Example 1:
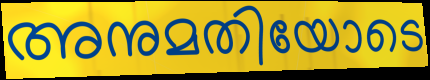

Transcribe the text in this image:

അനുമതിയോടെ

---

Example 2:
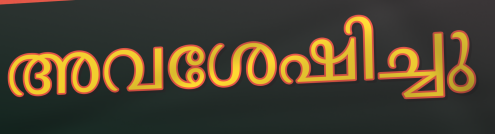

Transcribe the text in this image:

അവശേഷിച്ചു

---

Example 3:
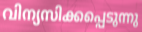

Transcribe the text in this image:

വിന്യസിക്കപ്പെടുന്നു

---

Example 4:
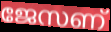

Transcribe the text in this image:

ജേസണ്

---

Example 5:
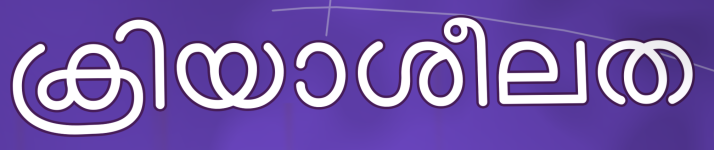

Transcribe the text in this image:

ക്രിയാശീലത